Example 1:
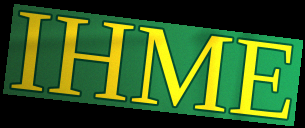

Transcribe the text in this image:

IHME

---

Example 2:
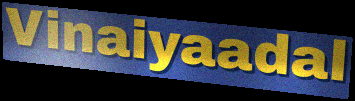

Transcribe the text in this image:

Vinaiyaadal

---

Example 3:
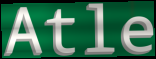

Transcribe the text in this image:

Atle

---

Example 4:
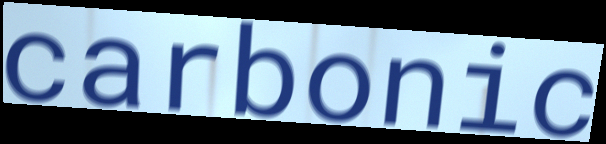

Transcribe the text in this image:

carbonic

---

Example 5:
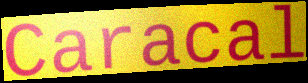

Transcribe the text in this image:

Caracal